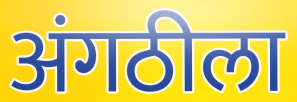
अंगठीला